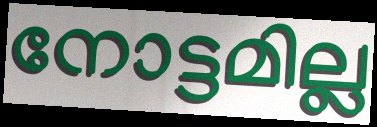
നോട്ടമില്ല